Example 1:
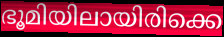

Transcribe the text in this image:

ഭൂമിയിലായിരിക്കെ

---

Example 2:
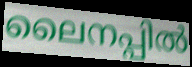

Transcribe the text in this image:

ലൈനപ്പിൽ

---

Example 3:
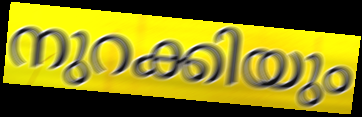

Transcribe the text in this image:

നുറക്കിയും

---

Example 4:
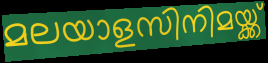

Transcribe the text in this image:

മലയാളസിനിമയ്ക്ക്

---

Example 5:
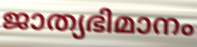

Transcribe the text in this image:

ജാത്യഭിമാനം